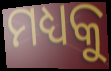
ମଧ୍ୟକୁ